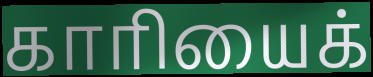
காரியைக்